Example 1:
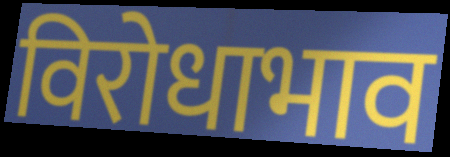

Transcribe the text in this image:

विरोधाभाव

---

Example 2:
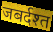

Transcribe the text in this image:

जबर्दश्त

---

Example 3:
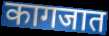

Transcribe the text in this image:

कागजात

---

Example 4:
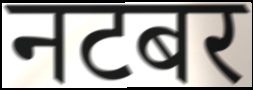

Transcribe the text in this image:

नटबर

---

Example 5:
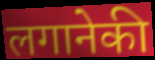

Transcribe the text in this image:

लगानेकी